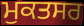
ਮੁਕਤਸਰ